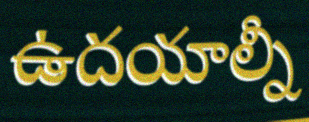
ఉదయాల్నీ